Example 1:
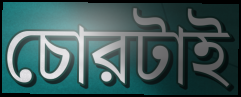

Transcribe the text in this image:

চোরটাই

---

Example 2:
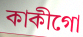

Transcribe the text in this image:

কাকীগো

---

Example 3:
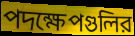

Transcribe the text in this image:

পদক্ষেপগুলির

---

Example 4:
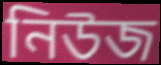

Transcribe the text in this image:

নিউজ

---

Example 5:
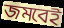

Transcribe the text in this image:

জমবেই